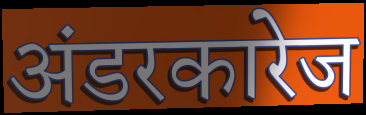
अंडरकारेज